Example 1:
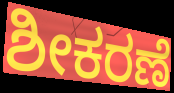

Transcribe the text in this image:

ಶೀಕರಣೆ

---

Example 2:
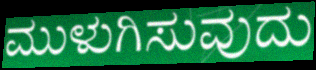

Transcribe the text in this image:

ಮುಳುಗಿಸುವುದು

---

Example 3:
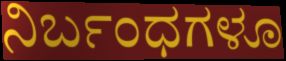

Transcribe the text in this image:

ನಿರ್ಬಂಧಗಳೂ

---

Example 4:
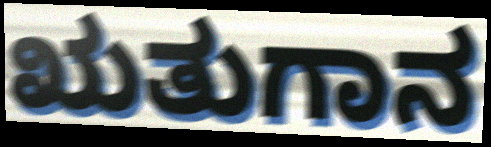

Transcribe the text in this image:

ಋತುಗಾನ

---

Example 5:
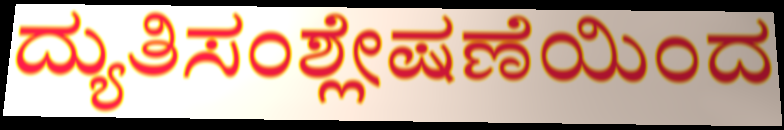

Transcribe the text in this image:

ದ್ಯುತಿಸಂಶ್ಲೇಷಣೆಯಿಂದ